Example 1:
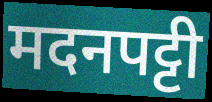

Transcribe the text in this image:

मदनपट्टी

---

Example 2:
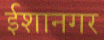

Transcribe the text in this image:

ईशानगर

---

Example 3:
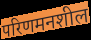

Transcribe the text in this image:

परिणमनशील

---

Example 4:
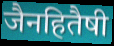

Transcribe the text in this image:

जैनहितैषी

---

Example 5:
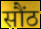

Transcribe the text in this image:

सौंठ